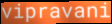
vipravani